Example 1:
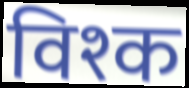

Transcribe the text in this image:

विश्क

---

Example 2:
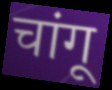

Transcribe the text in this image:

चांगू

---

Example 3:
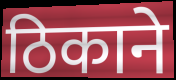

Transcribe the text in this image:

ठिकाने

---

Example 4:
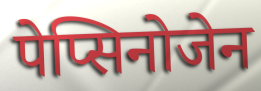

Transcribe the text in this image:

पेप्सिनोजेन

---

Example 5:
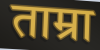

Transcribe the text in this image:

ताम्रा